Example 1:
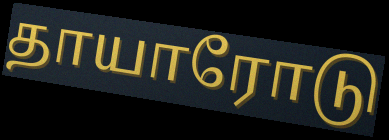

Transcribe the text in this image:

தாயாரோடு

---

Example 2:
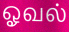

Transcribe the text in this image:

ஓவல்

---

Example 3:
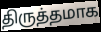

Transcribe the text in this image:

திருத்தமாக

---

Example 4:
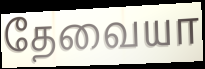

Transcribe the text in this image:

தேவையா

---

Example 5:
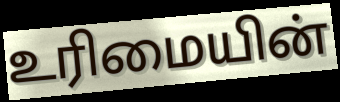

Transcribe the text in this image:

உரிமையின்